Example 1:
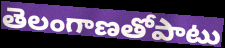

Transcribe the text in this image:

తెలంగాణతోపాటు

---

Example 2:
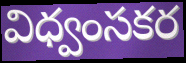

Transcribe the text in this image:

విధ్వంసకర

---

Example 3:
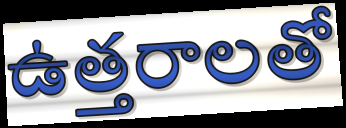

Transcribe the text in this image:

ఉత్తరాలతో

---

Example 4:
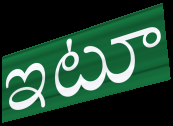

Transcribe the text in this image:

ఇటూ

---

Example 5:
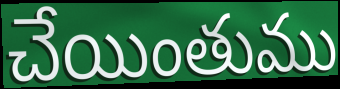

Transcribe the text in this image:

చేయింతుము